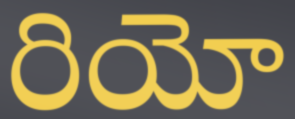
రియో